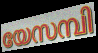
യേസമ്പി